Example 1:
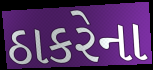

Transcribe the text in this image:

ઠાકરેના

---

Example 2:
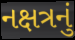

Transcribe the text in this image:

નક્ષત્રનું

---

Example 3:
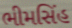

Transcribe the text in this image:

ભીમસિંહ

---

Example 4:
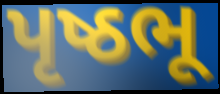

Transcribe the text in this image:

પૃષ્ઠભૂ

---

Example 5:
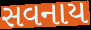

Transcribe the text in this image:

સવનાય